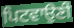
ਪਿਟਵਾਉਣੀ